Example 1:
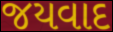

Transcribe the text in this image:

જયવાદ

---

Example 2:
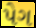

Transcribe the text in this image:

પેગ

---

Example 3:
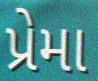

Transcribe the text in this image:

પ્રેમા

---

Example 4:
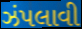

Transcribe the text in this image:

ઝંપલાવી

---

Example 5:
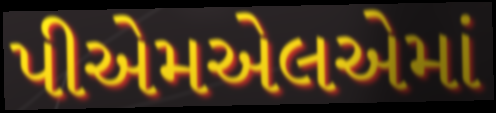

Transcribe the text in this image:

પીએમએલએમાં